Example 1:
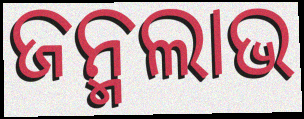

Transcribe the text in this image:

ଜନ୍ମଲାଭ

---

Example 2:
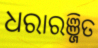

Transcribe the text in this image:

ଧରାରଞ୍ଜିତ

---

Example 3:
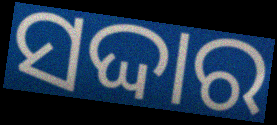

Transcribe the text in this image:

ସଦ୍ଦାର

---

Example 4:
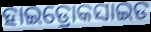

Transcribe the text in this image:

ହାଇଡ୍ରୋକସାଇଡ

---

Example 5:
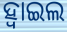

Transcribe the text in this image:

ହ୍ବାଇଲ